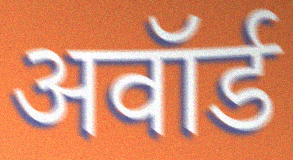
अवॉर्ड